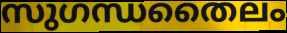
സുഗന്ധതൈലം